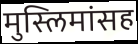
मुस्लिमांसह